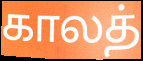
காலத்